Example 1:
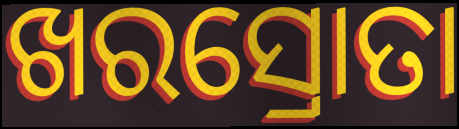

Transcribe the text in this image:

ଖରସ୍ରୋତା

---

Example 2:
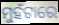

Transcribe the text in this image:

ମୁହଁଟାରେ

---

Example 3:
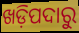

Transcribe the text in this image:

ଖଡ଼ିପଦାରୁ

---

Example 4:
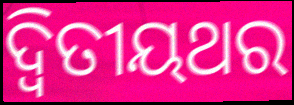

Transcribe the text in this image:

ଦ୍ବିତୀୟଥର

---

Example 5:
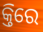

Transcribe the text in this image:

କ୍ତିରେ